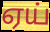
ஏய்